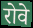
रोवे